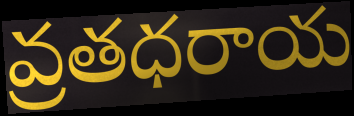
వ్రతధరాయ